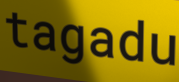
tagadu